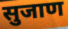
सुजाण